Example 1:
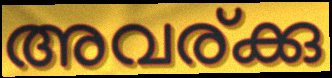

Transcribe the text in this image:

അവര്ക്കു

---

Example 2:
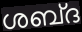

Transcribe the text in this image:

ശബ്‌ദ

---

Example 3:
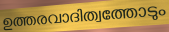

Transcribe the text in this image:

ഉത്തരവാദിത്വത്തോടും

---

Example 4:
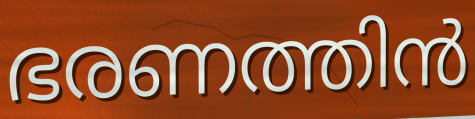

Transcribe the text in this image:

ഭരണത്തിൻ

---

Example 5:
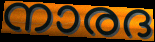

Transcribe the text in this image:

നാരദ